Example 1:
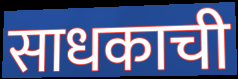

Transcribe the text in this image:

साधकाची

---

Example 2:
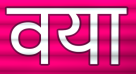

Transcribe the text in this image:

वया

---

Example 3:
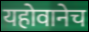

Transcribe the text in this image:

यहोवानेच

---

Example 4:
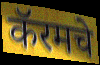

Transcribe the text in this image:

कॅरमचे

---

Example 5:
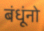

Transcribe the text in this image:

बंधूंनो